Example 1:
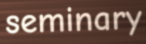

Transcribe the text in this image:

seminary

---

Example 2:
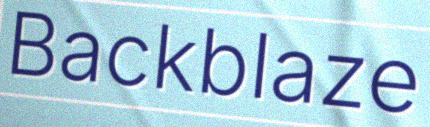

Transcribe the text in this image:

Backblaze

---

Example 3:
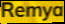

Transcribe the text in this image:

Remya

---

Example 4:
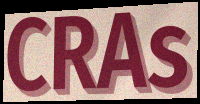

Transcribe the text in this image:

CRAs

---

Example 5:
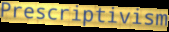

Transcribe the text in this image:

Prescriptivism